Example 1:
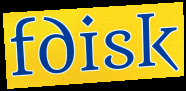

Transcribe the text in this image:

fdisk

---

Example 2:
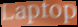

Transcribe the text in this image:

Laptop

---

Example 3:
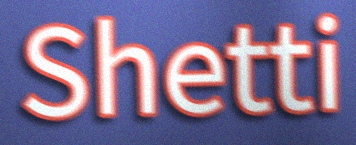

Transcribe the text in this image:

Shetti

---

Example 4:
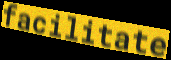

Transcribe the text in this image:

facilitate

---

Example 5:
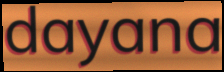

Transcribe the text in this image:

dayana